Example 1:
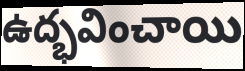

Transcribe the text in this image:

ఉద్భవించాయి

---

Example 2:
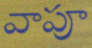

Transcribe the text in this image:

వాపూ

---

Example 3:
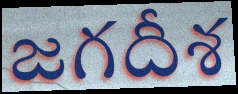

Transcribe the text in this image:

జగదీశ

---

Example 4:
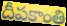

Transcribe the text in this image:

దీపకాంతి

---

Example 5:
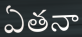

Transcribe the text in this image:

ఏతనా